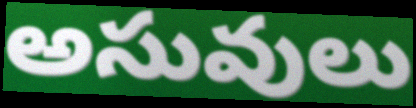
అసువులు